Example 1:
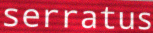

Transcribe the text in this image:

serratus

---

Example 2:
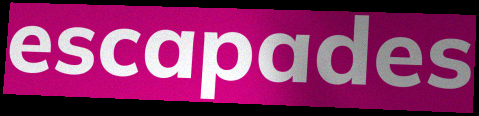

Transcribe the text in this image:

escapades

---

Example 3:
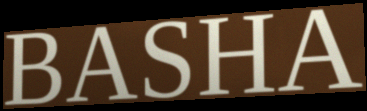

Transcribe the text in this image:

BASHA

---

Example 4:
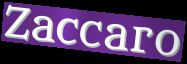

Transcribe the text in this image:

Zaccaro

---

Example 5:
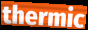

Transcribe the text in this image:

thermic